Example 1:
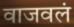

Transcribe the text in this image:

वाजवलं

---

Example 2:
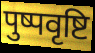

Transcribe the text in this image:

पुष्पवृष्टि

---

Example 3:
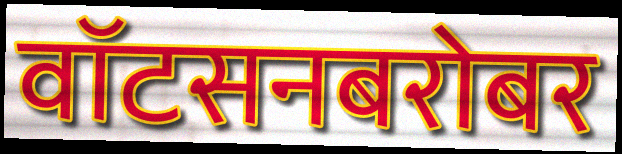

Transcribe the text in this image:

वॉटसनबरोबर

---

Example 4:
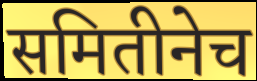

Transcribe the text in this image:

समितीनेच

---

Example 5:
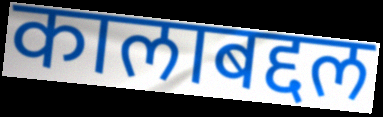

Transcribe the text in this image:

कालाबद्दल